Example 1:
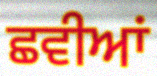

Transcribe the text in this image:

ਛਵੀਆਂ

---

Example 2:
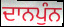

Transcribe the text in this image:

ਦਾਨਪੁੰਨ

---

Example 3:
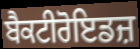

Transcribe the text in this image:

ਬੈਕਟੀਰੋਇਡਜ਼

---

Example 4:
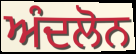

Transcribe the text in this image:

ਅੰਦਲੋਨ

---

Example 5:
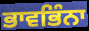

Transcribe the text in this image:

ਭਾਵਭਿੰਨਾ